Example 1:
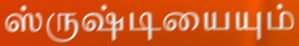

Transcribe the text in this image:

ஸ்ருஷ்டியையும்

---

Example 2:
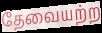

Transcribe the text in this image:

தேவையற்ற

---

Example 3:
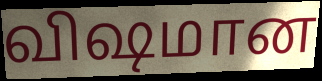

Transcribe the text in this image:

விஷமான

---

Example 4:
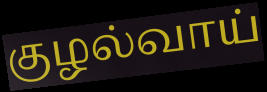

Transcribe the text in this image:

குழல்வாய்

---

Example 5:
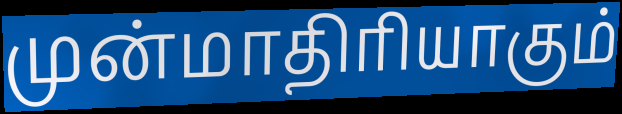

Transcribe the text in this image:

முன்மாதிரியாகும்